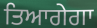
ਤਿਆਗੇਗਾ